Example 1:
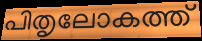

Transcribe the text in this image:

പിതൃലോകത്ത്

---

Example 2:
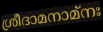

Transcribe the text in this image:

ശ്രീദാമനാമ്നഃ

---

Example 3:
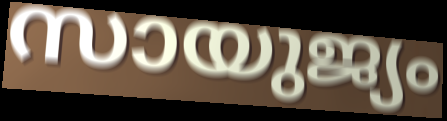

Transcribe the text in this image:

സായുജ്യം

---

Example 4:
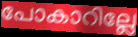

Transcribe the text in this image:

പോകാറില്ലേ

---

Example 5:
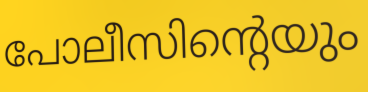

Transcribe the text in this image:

പോലീസിന്റെയും